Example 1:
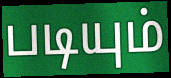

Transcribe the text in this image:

படியும்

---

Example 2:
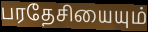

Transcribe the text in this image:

பரதேசியையும்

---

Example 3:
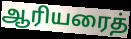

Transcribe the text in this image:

ஆரியரைத்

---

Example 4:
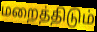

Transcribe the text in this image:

மறைத்திடும்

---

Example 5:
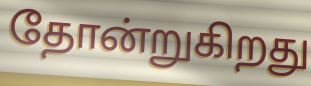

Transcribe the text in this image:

தோன்றுகிறது